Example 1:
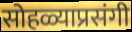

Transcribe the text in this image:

सोहळ्याप्रसंगी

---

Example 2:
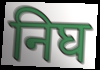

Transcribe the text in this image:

निघ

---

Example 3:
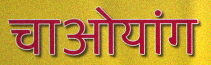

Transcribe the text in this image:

चाओयांग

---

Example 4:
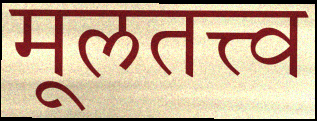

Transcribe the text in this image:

मूलतत्त्व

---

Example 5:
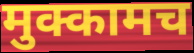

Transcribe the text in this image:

मुक्कामच